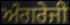
ਅੰਗਰੇਜੀ